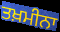
ਤਖ਼ਮੀਨਾ